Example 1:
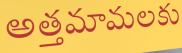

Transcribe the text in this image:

అత్తమామలకు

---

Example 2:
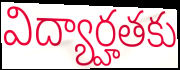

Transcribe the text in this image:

విద్యార్హతకు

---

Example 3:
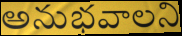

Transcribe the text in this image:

అనుభవాలని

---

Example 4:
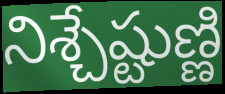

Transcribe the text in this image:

నిశ్చేష్టుణ్ణి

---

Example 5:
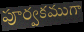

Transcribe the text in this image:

పూర్వకముగా